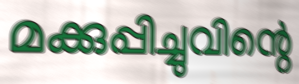
മക്കുപ്പിച്ചുവിന്റെ